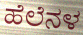
ಹೆಲೆನಳ